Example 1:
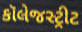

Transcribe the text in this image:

કૉલેજસ્ટ્રીટ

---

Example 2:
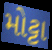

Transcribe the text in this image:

મોટ્ટા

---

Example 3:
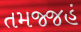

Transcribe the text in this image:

તમજ્જહં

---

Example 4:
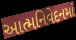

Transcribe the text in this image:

આત્મનિવેદનમાં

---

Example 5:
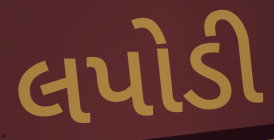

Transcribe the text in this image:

લપોડી